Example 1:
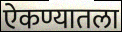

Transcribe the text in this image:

ऐकण्यातला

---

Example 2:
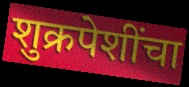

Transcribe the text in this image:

शुक्रपेशींचा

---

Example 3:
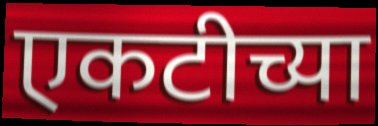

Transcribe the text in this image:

एकटीच्या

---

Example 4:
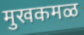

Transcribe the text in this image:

मुखकमळ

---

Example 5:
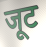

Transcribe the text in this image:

जूट